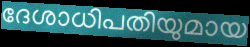
ദേശാധിപതിയുമായ